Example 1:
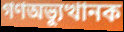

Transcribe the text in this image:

গণঅভ্যুত্থানক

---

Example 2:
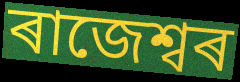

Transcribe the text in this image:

ৰাজেশ্বৰ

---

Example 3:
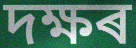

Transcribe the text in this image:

দক্ষৰ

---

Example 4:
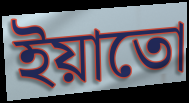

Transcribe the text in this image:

ইয়াতো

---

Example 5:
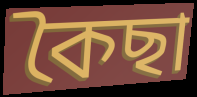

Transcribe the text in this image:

কৈছা